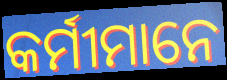
କର୍ମୀମାନେ